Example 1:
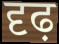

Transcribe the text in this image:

दृढ़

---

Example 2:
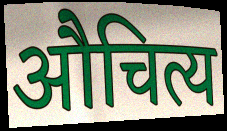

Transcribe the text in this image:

औचित्य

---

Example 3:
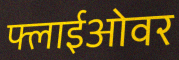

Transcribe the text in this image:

फ्लाईओवर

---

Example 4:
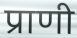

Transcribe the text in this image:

प्राणी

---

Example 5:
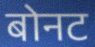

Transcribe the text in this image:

बोनट